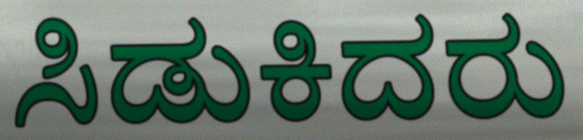
ಸಿಡುಕಿದರು